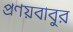
প্রণয়বাবুর